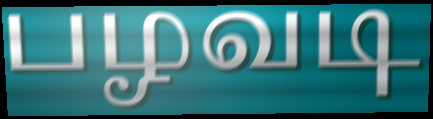
பழவடி